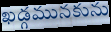
ఖడ్గమునకును